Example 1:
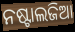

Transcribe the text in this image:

ନଷ୍ଟାଲଜିଆ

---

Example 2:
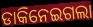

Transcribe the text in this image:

ଡାକିନେଇଗଲା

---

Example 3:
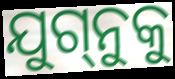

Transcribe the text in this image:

ଯୁଗ୍‌ନୁକୁ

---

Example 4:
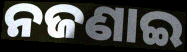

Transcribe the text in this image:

ନଜଣାଇ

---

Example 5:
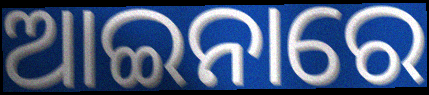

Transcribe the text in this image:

ଆଇନାରେ